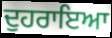
ਦੁਹਰਾਇਆ